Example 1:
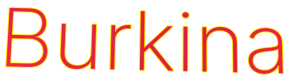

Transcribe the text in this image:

Burkina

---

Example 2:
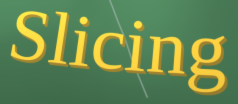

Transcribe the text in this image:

Slicing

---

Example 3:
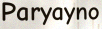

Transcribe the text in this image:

Paryayno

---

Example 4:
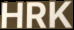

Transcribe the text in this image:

HRK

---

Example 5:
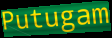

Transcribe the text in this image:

Putugam